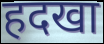
हदखा